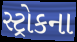
સ્ટ્રોકના